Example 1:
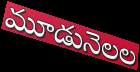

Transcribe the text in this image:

మూడునెలల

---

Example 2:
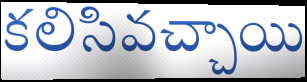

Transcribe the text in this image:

కలిసివచ్చాయి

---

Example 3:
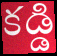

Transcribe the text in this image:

కడ్డి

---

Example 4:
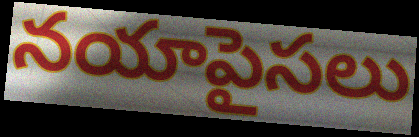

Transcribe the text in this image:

నయాపైసలు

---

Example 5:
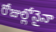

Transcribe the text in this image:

రోజుల్లోనైనా